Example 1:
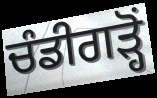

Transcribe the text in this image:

ਚੰਡੀਗੜ੍ਹੋਂ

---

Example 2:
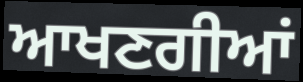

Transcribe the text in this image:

ਆਖਣਗੀਆਂ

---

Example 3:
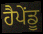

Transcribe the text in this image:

ਹੈਪੇਂਡੂ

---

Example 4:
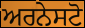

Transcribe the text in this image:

ਅਰਨੇਸਟੋ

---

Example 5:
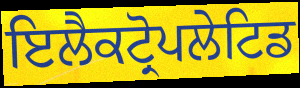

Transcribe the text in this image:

ਇਲੈਕਟ੍ਰੋਪਲੇਟਿਡ